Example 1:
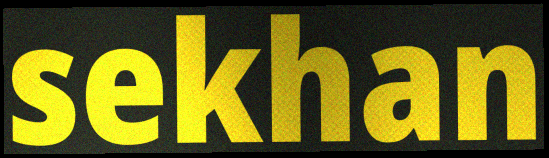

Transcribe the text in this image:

sekhan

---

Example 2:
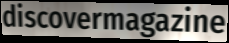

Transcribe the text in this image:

discovermagazine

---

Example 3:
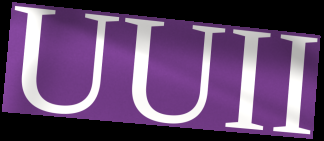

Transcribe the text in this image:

UUII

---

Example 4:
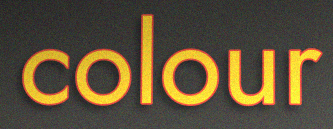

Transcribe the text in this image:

colour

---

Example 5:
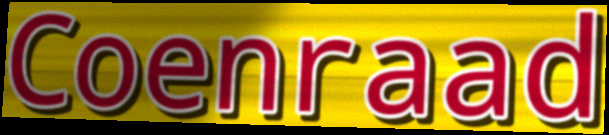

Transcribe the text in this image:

Coenraad